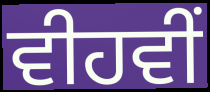
ਵੀਹਵੀਂ